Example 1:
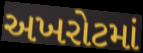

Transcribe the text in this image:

અખરોટમાં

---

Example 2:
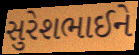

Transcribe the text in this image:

સુરેશભાઈને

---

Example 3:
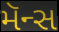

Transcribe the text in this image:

મૅન્સ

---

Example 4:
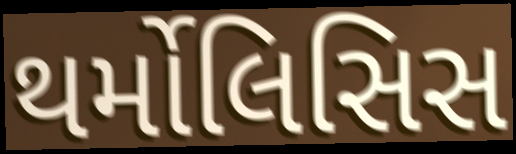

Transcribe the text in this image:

થર્મોલિસિસ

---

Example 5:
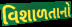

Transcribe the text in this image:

વિશાળતાનો